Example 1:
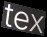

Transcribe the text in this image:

tex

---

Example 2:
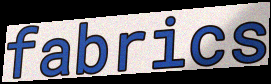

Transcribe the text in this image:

fabrics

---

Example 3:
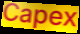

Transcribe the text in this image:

Capex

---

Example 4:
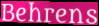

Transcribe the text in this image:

Behrens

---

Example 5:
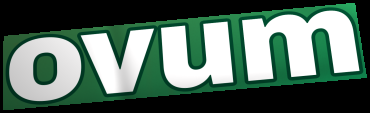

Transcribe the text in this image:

ovum